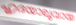
ഹൃദയാലുവായ